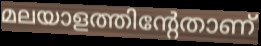
മലയാളത്തിന്റേതാണ്